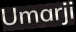
Umarji